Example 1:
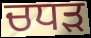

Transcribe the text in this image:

ਚਧੜ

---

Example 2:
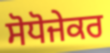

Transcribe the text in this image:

ਸੋਧੋਜੇਕਰ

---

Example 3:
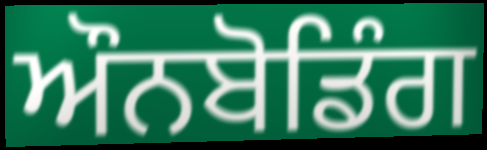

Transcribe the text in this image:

ਔਨਬੋਡਿੰਗ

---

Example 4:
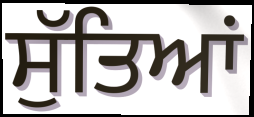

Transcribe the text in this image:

ਸੁੱਤਿਆਂ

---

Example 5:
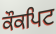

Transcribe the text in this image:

ਕੌਕਪਿਟ